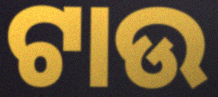
ଟାଉ